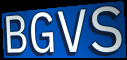
BGVS